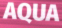
AQUA